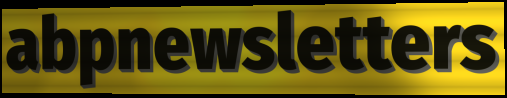
abpnewsletters